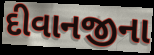
દીવાનજીના